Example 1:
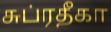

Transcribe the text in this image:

சுப்ரதீகா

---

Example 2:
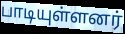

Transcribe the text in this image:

பாடியுள்ளனர்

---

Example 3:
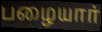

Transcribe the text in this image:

பழையார்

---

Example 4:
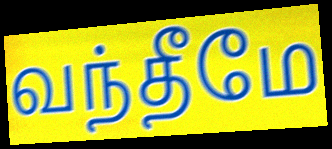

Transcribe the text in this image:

வந்தீமே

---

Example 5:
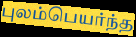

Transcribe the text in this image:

புலம்பெயர்ந்த